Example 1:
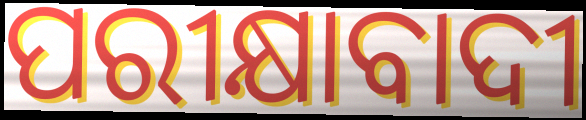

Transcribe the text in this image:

ପରୀକ୍ଷାବାଦୀ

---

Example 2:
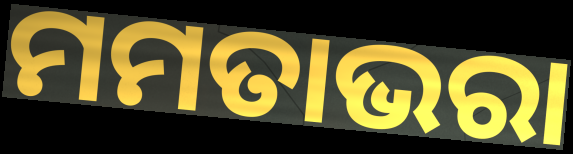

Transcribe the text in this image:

ମମତାଭରା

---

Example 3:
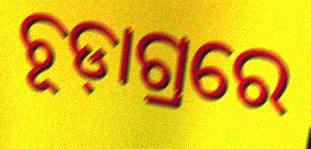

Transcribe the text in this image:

ଚୂଡ଼ାଗ୍ରରେ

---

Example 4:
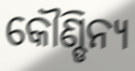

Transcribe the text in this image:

କୌଣ୍ଡିନ୍ୟ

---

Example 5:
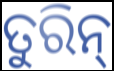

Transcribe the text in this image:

ତୁରିନ୍